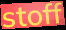
stoff